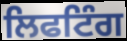
ਲਿਫਟਿੰਗ